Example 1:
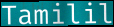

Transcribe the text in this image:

Tamilil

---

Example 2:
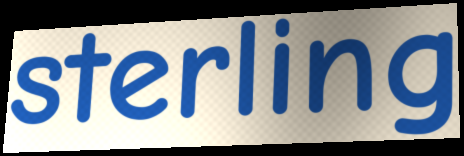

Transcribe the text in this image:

sterling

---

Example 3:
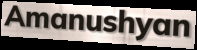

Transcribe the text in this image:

Amanushyan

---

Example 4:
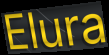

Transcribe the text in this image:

Elura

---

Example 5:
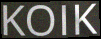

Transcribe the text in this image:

KOIK